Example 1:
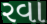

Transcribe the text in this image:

રવા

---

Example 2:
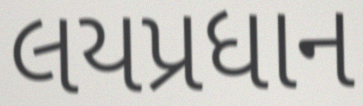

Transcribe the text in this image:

લયપ્રધાન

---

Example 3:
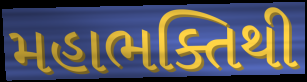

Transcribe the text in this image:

મહાભક્તિથી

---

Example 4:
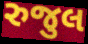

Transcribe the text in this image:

રુજુલ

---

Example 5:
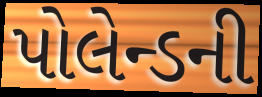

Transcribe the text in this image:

પોલેન્ડની